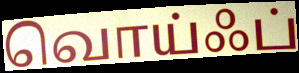
வொய்ஃப்